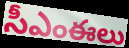
సీఎంఈలు